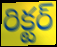
రిక్టర్